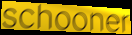
schooner